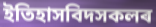
ইতিহাসবিদসকলৰ